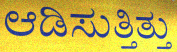
ಆಡಿಸುತ್ತಿತ್ತು